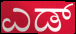
ಎಡ್